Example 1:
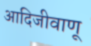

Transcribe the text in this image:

आदिजीवाणू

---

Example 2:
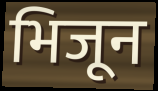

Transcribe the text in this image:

भिजून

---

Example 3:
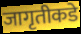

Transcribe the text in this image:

जागृतीकडे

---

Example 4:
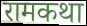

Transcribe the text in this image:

रामकथा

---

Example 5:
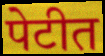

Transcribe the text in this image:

पेटीत